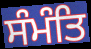
ਸੰਮੰਤਿ